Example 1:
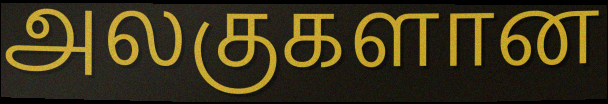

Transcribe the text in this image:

அலகுகளான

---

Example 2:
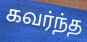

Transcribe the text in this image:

கவர்ந்த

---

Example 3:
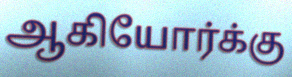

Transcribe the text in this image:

ஆகியோர்க்கு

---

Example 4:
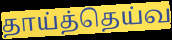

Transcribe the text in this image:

தாய்த்தெய்வ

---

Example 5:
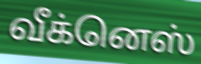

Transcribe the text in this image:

வீக்னெஸ்